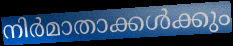
നിർമാതാക്കൾക്കും